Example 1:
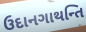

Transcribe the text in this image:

ઉદાનગાથન્તિ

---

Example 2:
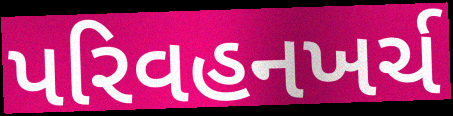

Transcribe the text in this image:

પરિવહનખર્ચ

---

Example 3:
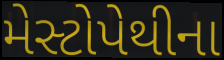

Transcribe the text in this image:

મેસ્ટોપેથીના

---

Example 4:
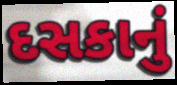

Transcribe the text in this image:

દસકાનું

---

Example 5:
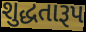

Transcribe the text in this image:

શુદ્ધતારૂપ